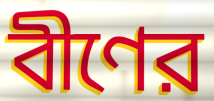
বীণের